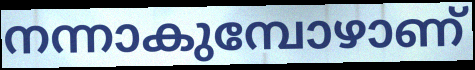
നന്നാകുമ്പോഴാണ്